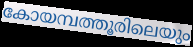
കോയമ്പത്തൂരിലെയും